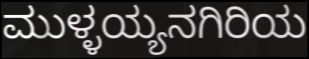
ಮುಳ್ಳಯ್ಯನಗಿರಿಯ